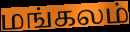
மங்கலம்